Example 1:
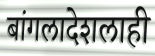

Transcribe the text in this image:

बांगलादेशलाही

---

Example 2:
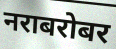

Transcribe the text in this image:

नराबरोबर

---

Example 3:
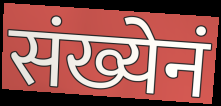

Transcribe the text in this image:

संख्येनं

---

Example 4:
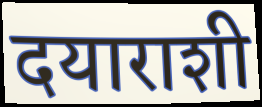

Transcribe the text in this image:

दयाराशी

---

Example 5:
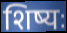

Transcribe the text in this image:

शिष्यः